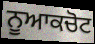
ਨੂਆਕਚੋਟ